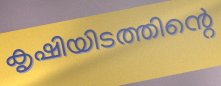
കൃഷിയിടത്തിന്റെ